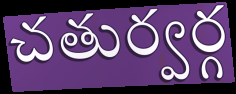
చతుర్వర్గ